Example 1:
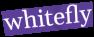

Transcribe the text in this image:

whitefly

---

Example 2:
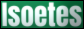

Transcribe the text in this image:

Isoetes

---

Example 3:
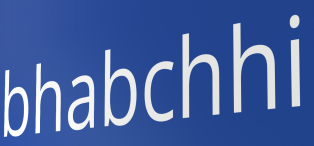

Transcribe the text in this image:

bhabchhi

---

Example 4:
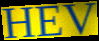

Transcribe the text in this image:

HEV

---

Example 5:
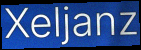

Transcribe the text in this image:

Xeljanz